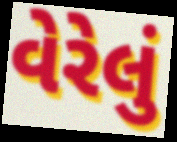
વેરેલું